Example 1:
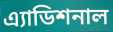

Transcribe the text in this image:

এ্যাডিশনাল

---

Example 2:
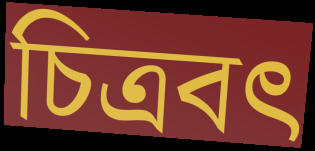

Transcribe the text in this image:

চিত্রবৎ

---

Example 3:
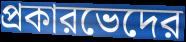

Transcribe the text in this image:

প্রকারভেদের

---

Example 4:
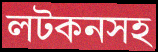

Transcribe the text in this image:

লটকনসহ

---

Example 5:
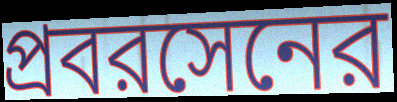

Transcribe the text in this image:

প্রবরসেনের